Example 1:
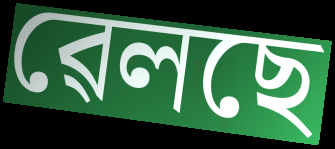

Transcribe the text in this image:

ৱেলছে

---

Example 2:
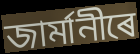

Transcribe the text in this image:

জাৰ্মানীৰে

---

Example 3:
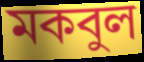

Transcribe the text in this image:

মকবুল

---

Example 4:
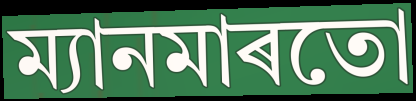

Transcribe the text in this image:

ম্যানমাৰতো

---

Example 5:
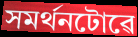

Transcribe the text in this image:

সমৰ্থনটোৱে